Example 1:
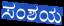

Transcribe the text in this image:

ಸಂಶಯ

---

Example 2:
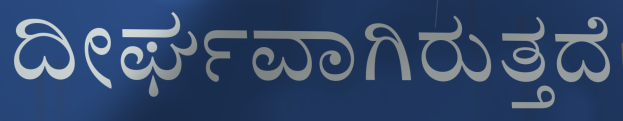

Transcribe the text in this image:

ದೀರ್ಘವಾಗಿರುತ್ತದೆ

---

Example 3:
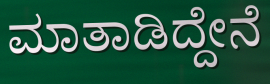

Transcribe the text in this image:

ಮಾತಾಡಿದ್ದೇನೆ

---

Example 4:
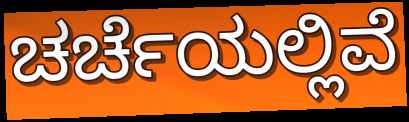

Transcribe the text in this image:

ಚರ್ಚೆಯಲ್ಲಿವೆ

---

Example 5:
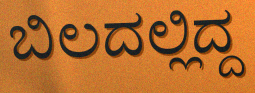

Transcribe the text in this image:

ಬಿಲದಲ್ಲಿದ್ದ